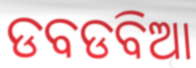
ଡବଡବିଆ